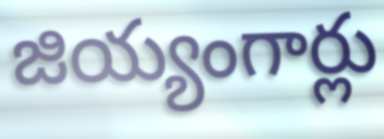
జియ్యంగార్లు